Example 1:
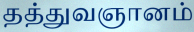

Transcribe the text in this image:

தத்துவஞானம்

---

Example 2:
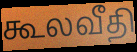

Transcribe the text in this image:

கூலவீதி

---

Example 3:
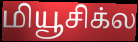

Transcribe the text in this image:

மியூசிக்ல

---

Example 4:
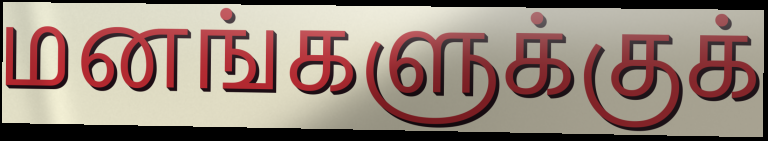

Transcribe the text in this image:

மனங்களுக்குக்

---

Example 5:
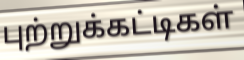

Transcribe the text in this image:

புற்றுக்கட்டிகள்